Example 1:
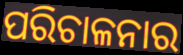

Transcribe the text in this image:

ପରିଚାଳନାର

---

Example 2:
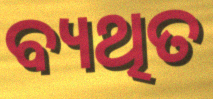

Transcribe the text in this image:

ବ୍ୟଥିତ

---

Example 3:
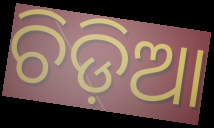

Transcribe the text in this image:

ଚିଡ଼ିଆ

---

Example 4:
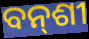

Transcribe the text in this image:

ବନ୍‍ଶୀ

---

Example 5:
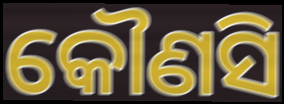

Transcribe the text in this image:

କୌଣସି